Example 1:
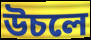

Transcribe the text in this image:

উচলে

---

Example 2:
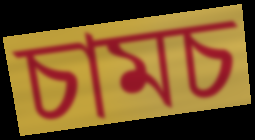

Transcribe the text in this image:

চামচ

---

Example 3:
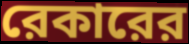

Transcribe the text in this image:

রেকারের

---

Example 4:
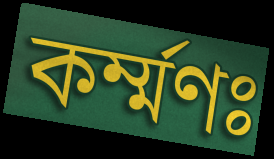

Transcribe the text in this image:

কর্ম্মণঃ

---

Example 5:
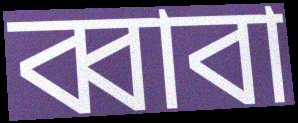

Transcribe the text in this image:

ব্বাবা